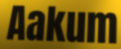
Aakum